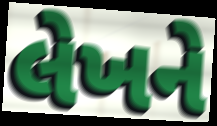
લેખને